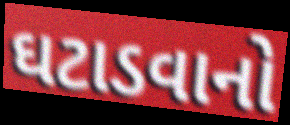
ઘટાડવાનો